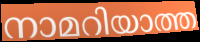
നാമറിയാത്ത